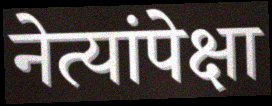
नेत्यांपेक्षा